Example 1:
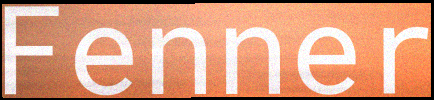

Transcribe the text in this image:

Fenner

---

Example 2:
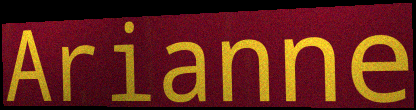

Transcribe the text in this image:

Arianne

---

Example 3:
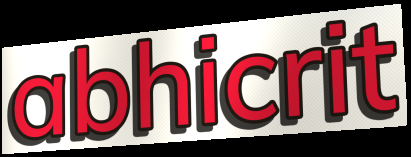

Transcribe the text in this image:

abhicrit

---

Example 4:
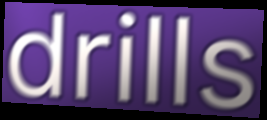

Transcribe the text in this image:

drills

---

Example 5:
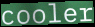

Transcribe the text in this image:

cooler